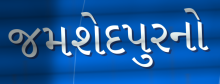
જમશેદપુરનો